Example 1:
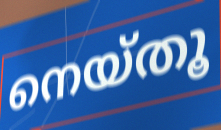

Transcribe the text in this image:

നെയ്തൂ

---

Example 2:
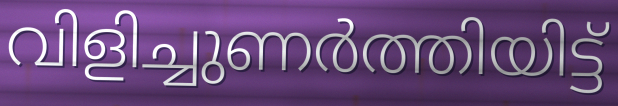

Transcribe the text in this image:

വിളിച്ചുണർത്തിയിട്ട്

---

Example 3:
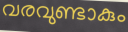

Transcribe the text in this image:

വരവുണ്ടാകും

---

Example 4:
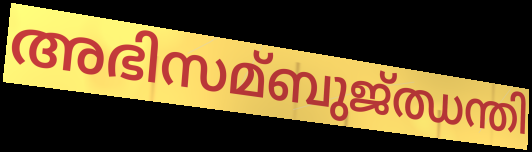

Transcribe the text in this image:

അഭിസമ്ബുജ്ഝന്തി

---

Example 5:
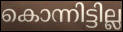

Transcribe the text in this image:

കൊന്നിട്ടില്ല